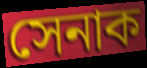
সেনাক